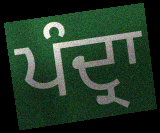
ਪੰਦ੍ਰਾ